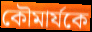
কৌমার্যকে